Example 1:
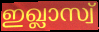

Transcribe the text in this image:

ഇഖ്ലാസ്വ്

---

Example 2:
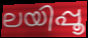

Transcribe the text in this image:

ലയിപ്പൂ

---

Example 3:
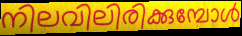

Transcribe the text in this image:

നിലവിലിരിക്കുമ്പോൾ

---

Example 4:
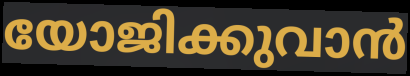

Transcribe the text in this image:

യോജിക്കുവാൻ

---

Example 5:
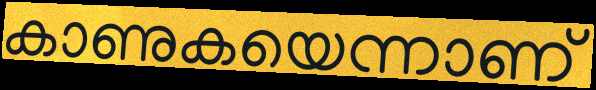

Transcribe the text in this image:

കാണുകയെന്നാണ്